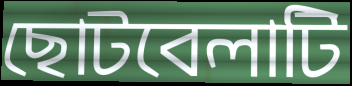
ছোটবেলাটি